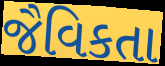
જૈવિકતા